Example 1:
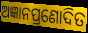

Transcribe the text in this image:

ଅଜ୍ଞାନପ୍ରଣୋଦିତ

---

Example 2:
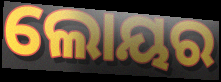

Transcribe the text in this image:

ଲୋୟର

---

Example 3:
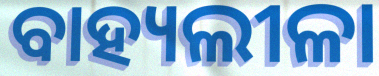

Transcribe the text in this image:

ବାହ୍ୟଲୀଳା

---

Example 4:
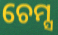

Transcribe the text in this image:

ଚେମ୍ସ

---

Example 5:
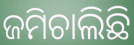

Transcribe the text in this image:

ଜମିଚାଲିଛି